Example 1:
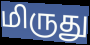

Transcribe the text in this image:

மிருது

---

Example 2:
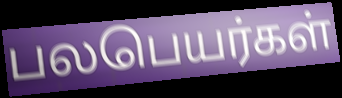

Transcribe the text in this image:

பலபெயர்கள்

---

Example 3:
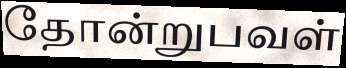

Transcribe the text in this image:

தோன்றுபவள்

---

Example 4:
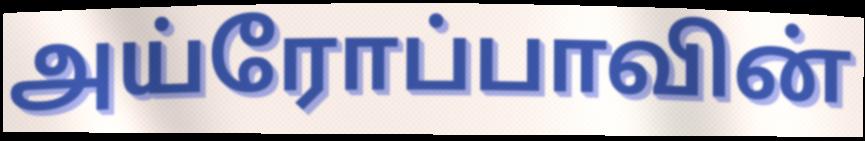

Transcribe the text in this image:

அய்ரோப்பாவின்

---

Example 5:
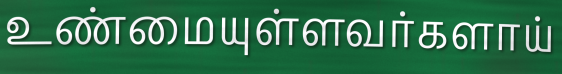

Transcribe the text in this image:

உண்மையுள்ளவர்களாய்